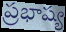
ప్రభాష్య